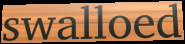
swalloed